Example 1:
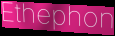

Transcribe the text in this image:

Ethephon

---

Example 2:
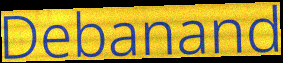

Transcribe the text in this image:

Debanand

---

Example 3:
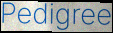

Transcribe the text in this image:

Pedigree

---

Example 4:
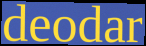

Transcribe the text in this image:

deodar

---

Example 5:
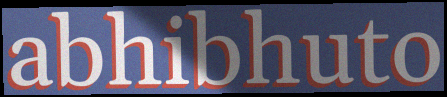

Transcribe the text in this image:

abhibhuto